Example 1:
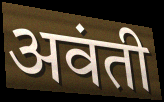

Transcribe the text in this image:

अवंती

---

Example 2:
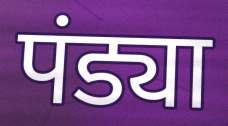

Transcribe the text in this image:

पंड्या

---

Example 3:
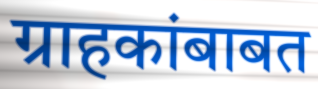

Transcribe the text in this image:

ग्राहकांबाबत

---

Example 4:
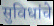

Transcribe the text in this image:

सुविधांचे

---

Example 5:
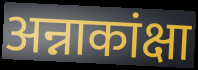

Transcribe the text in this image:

अन्नाकांक्षा